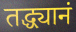
तद्ध्यानं